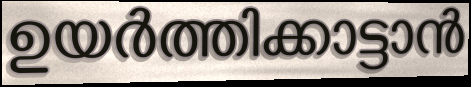
ഉയർത്തിക്കാട്ടാൻ